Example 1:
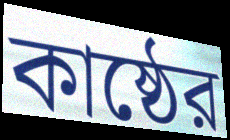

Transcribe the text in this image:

কাষ্ঠের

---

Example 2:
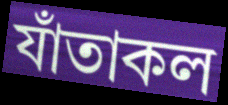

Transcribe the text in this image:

যাঁতাকল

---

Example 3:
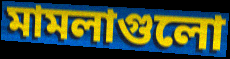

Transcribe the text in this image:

মামলাগুলো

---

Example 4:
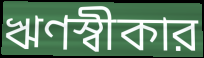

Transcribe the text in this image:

ঋণস্বীকার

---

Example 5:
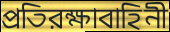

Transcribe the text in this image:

প্রতিরক্ষাবাহিনী